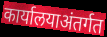
कार्यालयाअंतर्गत